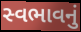
સ્વભાવનું